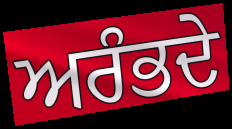
ਅਰੰਭਦੇ